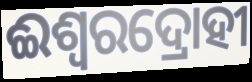
ଈଶ୍ଵରଦ୍ରୋହୀ